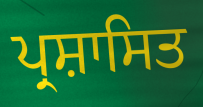
ਪ੍ਰਸ਼ਾਸਿਤ